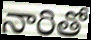
నారితో